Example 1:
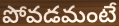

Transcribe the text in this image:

పోవడమంటే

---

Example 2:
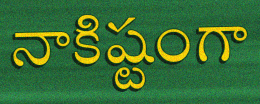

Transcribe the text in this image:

నాకిష్టంగా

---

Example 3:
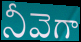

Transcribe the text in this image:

నీవెగా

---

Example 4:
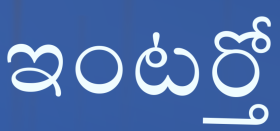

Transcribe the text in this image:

ఇంటర్తో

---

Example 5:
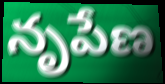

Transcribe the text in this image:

నృపేణ